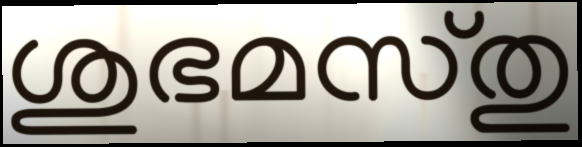
ശുഭമസ്തു